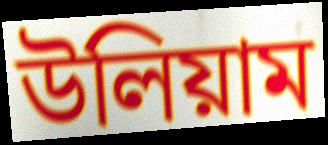
উলিয়াম